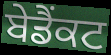
ਬੇਡੈਂਕਟ